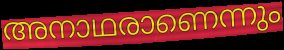
അനാഥരാണെന്നും